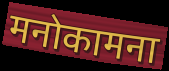
मनोकामना